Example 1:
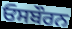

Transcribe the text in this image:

ਓਸਬੌਰਨ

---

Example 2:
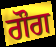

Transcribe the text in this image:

ਗੌਗ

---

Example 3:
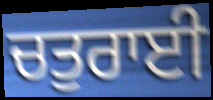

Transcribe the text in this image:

ਚਤੁਰਾਈ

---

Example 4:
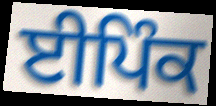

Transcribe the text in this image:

ਈਪਿੰਕ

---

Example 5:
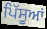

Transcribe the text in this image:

ਪਿੱਸੂਆਂ